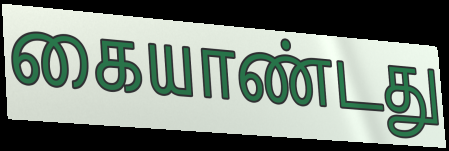
கையாண்டது